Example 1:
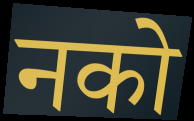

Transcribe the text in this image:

नको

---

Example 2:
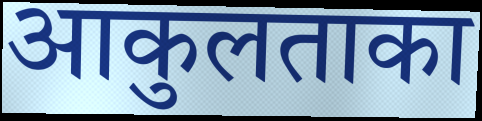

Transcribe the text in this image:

आकुलताका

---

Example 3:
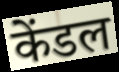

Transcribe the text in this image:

केंडल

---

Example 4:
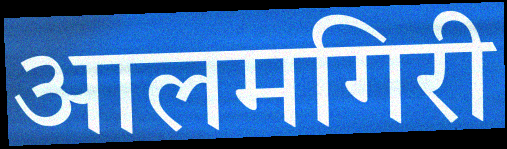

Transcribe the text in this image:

आलमगिरी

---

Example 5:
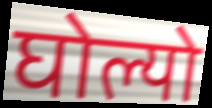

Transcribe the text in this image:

घोल्यो